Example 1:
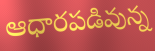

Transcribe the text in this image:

ఆధారపడివున్న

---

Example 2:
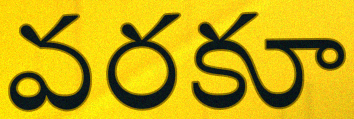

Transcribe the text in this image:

వరకూ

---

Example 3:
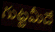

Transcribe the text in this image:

గుట్టమీదే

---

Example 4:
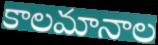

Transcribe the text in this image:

కాలమానాల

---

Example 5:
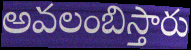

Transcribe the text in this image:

అవలంబిస్తారు